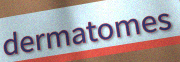
dermatomes